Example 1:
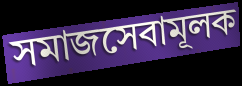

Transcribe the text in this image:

সমাজসেবামূলক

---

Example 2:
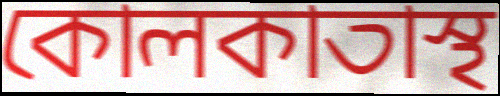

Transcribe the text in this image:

কোলকাতাস্থ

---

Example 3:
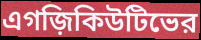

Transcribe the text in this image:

এগজ়িকিউটিভের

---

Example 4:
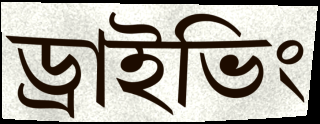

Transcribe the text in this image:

ড্রাইভিং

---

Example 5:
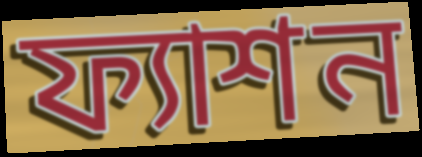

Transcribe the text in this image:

ফ্যাশন